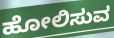
ಹೋಲಿಸುವ